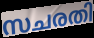
സചരതി